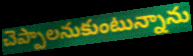
చెప్పాలనుకుంటున్నాను